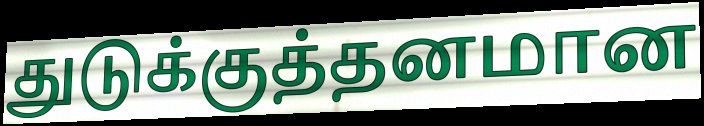
துடுக்குத்தனமான